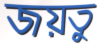
জয়তু